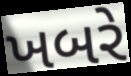
ખબરે